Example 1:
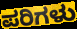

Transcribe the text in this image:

ಪರಿಗಳು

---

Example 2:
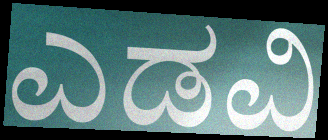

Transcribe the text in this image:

ಎಡವಿ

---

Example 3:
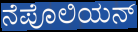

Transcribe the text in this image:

ನೆಪೊಲಿಯನ್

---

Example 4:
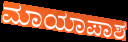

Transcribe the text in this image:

ಮಾಯಾಪಾಶ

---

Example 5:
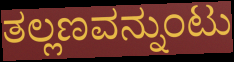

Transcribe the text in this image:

ತಲ್ಲಣವನ್ನುಂಟು